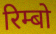
रिम्बो